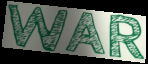
WAR